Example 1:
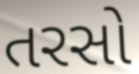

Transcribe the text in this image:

તરસો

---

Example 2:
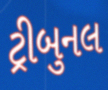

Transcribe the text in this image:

ટ્રીબુનલ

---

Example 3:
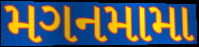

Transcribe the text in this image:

મગનમામા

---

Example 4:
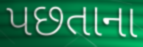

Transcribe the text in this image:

પછતાના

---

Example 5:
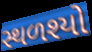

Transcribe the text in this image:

સ્થળશ્યો